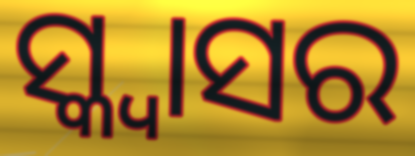
ସ୍କ୍ବାସର